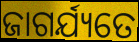
ଜାଗର୍ଯ୍ୟତେ